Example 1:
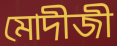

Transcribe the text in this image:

মোদীজী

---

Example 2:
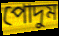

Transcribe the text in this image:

পোদুম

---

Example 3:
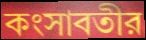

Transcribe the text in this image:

কংসাবতীর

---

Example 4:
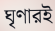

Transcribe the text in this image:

ঘৃণারই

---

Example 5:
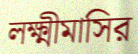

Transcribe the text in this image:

লক্ষ্মীমাসির